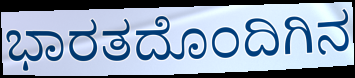
ಭಾರತದೊಂದಿಗಿನ